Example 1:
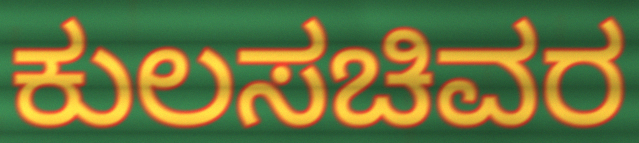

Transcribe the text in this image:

ಕುಲಸಚಿವರ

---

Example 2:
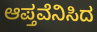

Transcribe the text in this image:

ಆಪ್ತವೆನಿಸಿದ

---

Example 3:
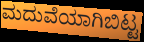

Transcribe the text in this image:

ಮದುವೆಯಾಗಿಬಿಟ್ಟ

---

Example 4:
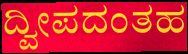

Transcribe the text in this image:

ದ್ವೀಪದಂತಹ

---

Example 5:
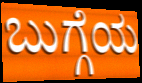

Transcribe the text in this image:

ಬುಗ್ಗೆಯ